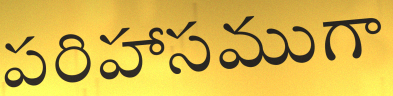
పరిహాసముగా